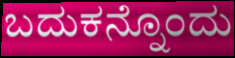
ಬದುಕನ್ನೊಂದು